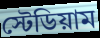
স্টেডিয়াম